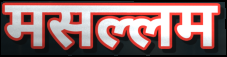
मसल्लम